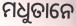
ମଧୁତାନେ